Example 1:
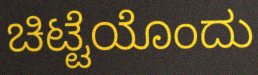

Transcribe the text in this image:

ಚಿಟ್ಟೆಯೊಂದು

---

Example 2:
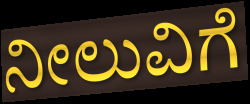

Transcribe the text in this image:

ನೀಲುವಿಗೆ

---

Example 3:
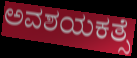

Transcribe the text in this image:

ಅವಶಯಕತ್ಸೆ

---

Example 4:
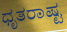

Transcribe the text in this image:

ಧೃತರಾಷ್ಟ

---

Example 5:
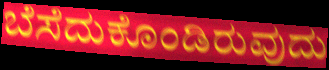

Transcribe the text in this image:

ಬೆಸೆದುಕೊಂಡಿರುವುದು